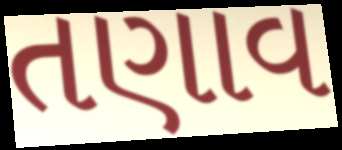
તણાવ